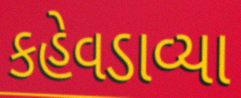
કહેવડાવ્યા